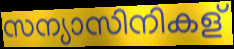
സന്യാസിനികള്